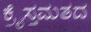
ಕ್ರೈಸ್ತಮತದ